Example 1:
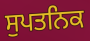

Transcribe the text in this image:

ਸੁਪਤਨਿਕ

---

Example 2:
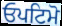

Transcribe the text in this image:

ਓਪਟਿਮੋ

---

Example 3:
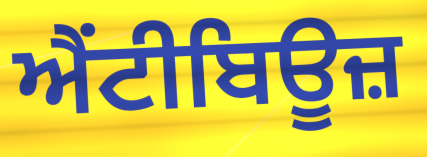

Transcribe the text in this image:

ਐਂਟੀਬਿਊਜ਼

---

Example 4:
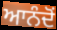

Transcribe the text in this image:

ਆਨੰਦੋਂ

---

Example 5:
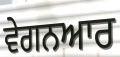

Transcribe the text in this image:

ਵੇਗਨਆਰ